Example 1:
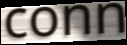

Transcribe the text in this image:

conn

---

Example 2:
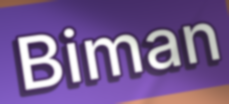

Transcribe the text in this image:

Biman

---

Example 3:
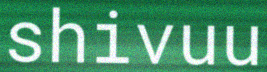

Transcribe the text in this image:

shivuu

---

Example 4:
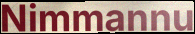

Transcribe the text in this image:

Nimmannu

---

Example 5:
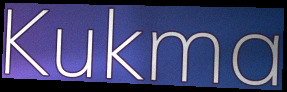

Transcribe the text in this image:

Kukma